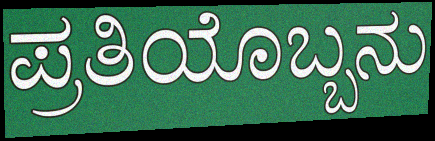
ಪ್ರತಿಯೊಬ್ಬನು